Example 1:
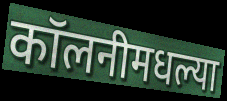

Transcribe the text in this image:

कॉलनीमधल्या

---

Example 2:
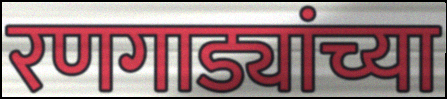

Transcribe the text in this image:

रणगाड्यांच्या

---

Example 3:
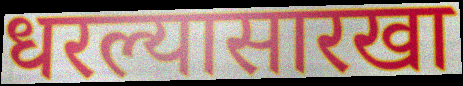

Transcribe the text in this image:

धरल्यासारखा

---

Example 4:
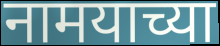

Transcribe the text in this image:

नामयाच्या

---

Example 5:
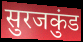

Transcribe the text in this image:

सुरजकुंड